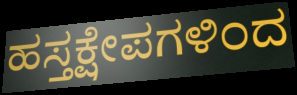
ಹಸ್ತಕ್ಷೇಪಗಳಿಂದ